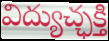
విద్యుచ్ఛక్తి